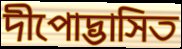
দীপোদ্ভাসিত